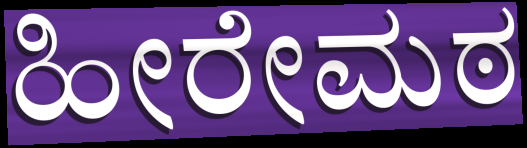
ಹೀರೇಮಠ